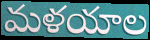
మళయాల